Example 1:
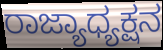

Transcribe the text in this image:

ರಾಜ್ಯಾಧ್ಯಕ್ಷನ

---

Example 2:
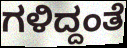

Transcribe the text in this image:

ಗಳಿದ್ದಂತೆ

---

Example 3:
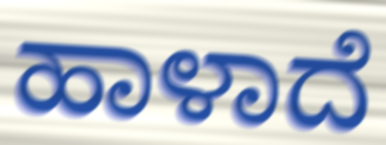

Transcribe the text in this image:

ಹಾಳಾದೆ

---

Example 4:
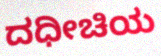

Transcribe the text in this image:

ದಧೀಚಿಯ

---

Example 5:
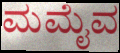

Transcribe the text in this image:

ಮಮೈವ